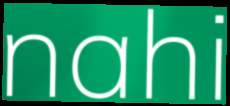
nahi